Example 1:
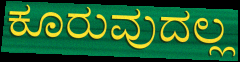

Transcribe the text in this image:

ಕೂರುವುದಲ್ಲ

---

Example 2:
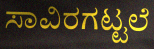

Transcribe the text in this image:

ಸಾವಿರಗಟ್ಟಲೆ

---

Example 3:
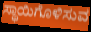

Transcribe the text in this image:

ಸ್ಥಾಯಿಗೊಳಿಸುವ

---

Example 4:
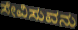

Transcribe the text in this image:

ಸೇವಿಸುವನು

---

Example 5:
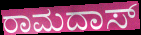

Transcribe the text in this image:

ರಾಮದಾಸ್